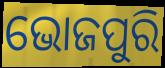
ଭୋଜପୁରି